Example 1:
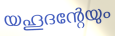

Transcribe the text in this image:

യഹൂദന്റേയും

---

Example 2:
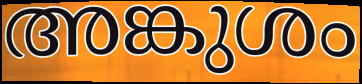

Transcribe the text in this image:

അങ്കുശം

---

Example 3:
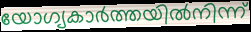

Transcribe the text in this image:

യോഗ്യകാർത്തയിൽനിന്ന്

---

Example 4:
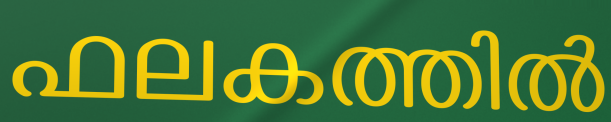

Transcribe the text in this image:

ഫലകത്തിൽ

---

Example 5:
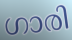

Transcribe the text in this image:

ഗാരി